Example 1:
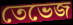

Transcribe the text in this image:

তেভেজ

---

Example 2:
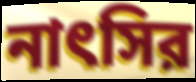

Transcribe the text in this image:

নাৎসির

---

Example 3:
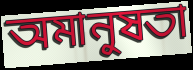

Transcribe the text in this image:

অমানুষতা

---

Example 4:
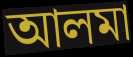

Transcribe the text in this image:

আলমা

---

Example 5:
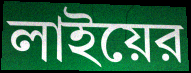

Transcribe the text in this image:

লাইয়ের